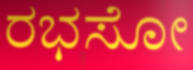
ರಭಸೋ